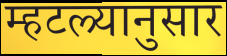
म्हटल्यानुसार